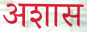
अशास